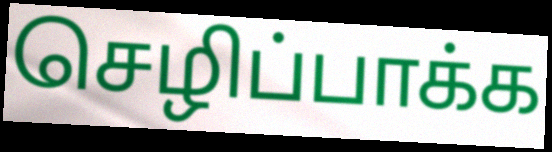
செழிப்பாக்க